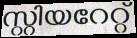
സ്റ്റിയറേറ്റ്